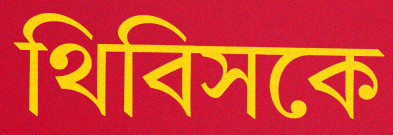
থিবিসকে